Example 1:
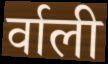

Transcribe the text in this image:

र्वाली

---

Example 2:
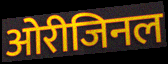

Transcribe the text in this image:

ओरीजिनल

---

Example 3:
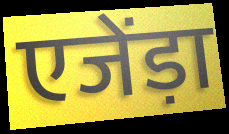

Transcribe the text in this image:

एजेंड़ा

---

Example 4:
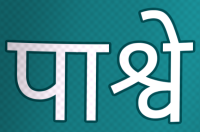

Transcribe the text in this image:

पाश्वे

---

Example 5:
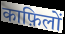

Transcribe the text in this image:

काफ़िलों